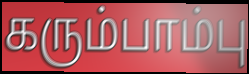
கரும்பாம்பு